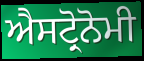
ਐਸਟ੍ਰੋਨੋਮੀ